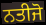
ਨਤੀਜੋ